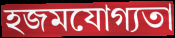
হজমযোগ্যতা